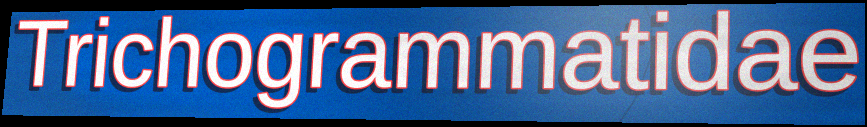
Trichogrammatidae